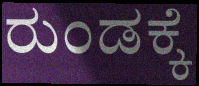
ರುಂಡಕ್ಕೆ